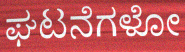
ಘಟನೆಗಳೋ